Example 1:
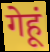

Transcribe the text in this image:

गेहूं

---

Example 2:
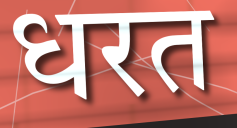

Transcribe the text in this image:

धरत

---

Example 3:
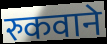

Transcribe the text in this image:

रुकवाने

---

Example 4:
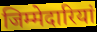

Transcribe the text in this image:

जिम्मेदारियां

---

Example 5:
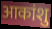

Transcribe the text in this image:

आकांशु